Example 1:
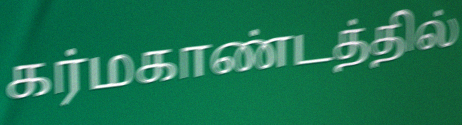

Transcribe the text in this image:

கர்மகாண்டத்தில்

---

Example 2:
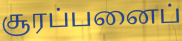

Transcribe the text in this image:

சூரப்பனைப்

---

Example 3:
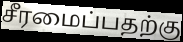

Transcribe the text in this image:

சீரமைப்பதற்கு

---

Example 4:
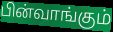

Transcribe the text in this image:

பின்வாங்கும்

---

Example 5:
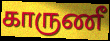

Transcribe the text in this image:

காருணீ